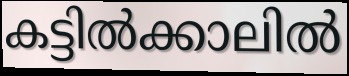
കട്ടിൽക്കാലിൽ